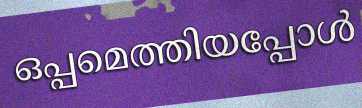
ഒപ്പമെത്തിയപ്പോൾ